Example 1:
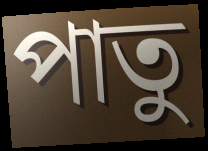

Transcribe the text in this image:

পাতু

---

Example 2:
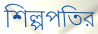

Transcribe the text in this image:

শিল্পপতির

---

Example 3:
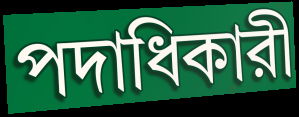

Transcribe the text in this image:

পদাধিকারী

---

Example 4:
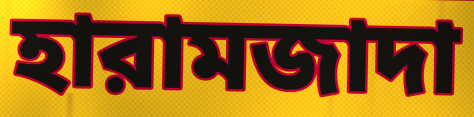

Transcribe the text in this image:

হারামজাদা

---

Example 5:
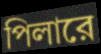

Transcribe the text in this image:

পিলারে